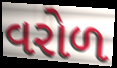
વરોળ